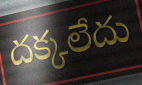
దక్కలేదు